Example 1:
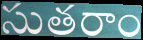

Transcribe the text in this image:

సుతరాం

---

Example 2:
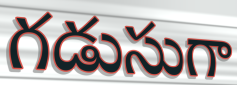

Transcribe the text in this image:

గడుసుగా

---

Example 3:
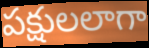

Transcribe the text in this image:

పక్షులలాగా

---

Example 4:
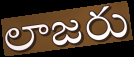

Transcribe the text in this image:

లాజరు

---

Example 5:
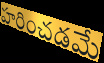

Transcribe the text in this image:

హరించడమే